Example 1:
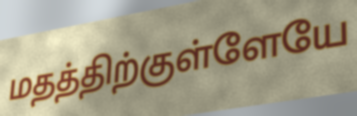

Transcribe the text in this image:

மதத்திற்குள்ளேயே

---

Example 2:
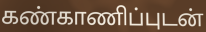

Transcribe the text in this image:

கண்காணிப்புடன்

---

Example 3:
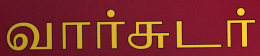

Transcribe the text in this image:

வார்சுடர்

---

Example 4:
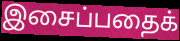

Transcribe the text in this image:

இசைப்பதைக்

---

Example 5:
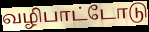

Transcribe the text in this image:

வழிபாட்டோடு